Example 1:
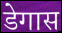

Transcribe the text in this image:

डेगास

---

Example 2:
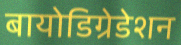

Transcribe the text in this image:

बायोडिग्रेडेशन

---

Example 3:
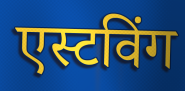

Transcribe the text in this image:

एस्टविंग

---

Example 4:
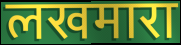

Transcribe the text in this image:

लखमारा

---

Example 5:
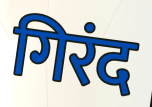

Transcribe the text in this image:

गिरंद